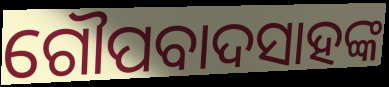
ଗୌପବାଦସାହଙ୍କ